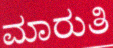
ಮಾರುತಿ